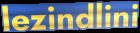
lezindlini